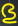
ഭു